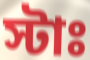
স্টাঃ